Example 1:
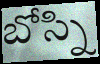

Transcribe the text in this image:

బోస్ని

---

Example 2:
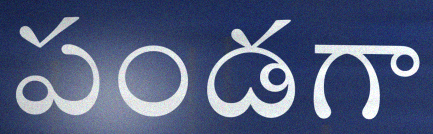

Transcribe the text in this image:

పండగా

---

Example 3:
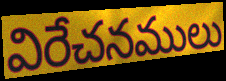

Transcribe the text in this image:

విరేచనములు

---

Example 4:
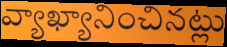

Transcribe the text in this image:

వ్యాఖ్యానించినట్లు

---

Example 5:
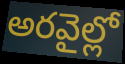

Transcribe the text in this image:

అరవైల్లో